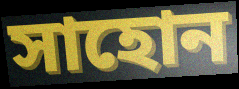
সাহোন